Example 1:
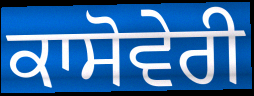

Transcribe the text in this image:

ਕਾਸੋਵੇਰੀ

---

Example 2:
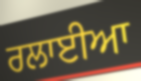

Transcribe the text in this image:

ਰਲਾਈਆ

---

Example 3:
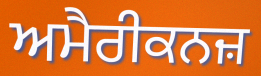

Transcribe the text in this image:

ਅਮੈਰੀਕਨਜ਼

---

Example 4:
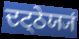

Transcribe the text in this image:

ਦਟ੍ਠੇਯ੍ਯਂ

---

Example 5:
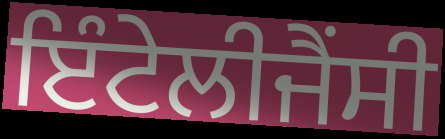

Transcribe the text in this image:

ਇੰਟੇਲੀਜੈਂਸੀ